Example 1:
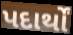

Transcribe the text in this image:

પદાર્થોં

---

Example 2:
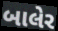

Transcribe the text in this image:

બાલેર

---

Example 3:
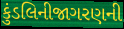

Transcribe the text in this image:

કુંડલિનીજાગરણની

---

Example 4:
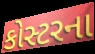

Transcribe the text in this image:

કોસ્ટરના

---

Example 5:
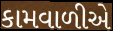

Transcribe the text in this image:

કામવાળીએ